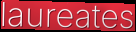
laureates